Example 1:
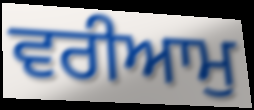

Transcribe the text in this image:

ਵਰੀਆਮੁ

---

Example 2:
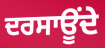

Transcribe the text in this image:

ਦਰਸਾਊਂਦੇ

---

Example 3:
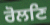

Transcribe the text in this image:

ਰੋਲਣਿ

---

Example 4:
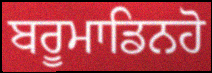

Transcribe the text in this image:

ਬਰੂਮਾਡਿਨਹੋ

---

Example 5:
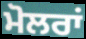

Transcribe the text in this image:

ਮੋਲਰਾਂ